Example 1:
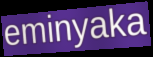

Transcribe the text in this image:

eminyaka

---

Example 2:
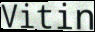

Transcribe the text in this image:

Vitin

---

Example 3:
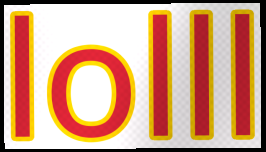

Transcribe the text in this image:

lolll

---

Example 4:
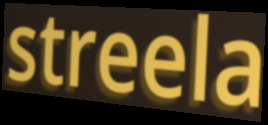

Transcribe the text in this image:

streela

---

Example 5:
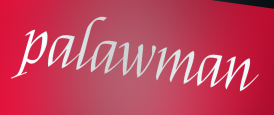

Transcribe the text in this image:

palawman